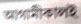
আগামীকালই